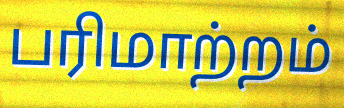
பரிமாற்றம்